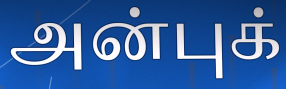
அன்புக்